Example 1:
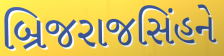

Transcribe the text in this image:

બ્રિજરાજસિંહને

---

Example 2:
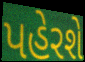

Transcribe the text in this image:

પહેરશે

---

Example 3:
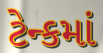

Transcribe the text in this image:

ટેન્કમાં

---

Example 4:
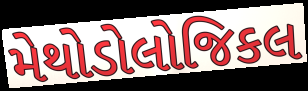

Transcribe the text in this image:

મેથોડોલોજિકલ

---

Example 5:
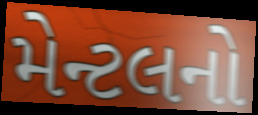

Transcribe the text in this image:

મેન્ટલનો